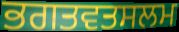
ਭਗਤਵਤਸਲਮ